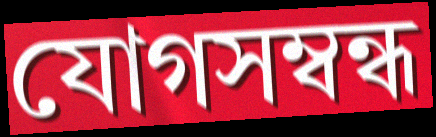
যোগসম্বন্ধ